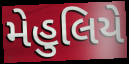
મેહુલિયે